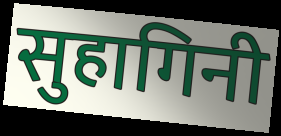
सुहागिनी